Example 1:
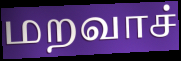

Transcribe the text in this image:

மறவாச்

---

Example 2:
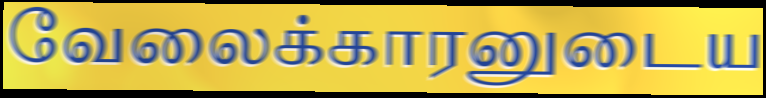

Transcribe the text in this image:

வேலைக்காரனுடைய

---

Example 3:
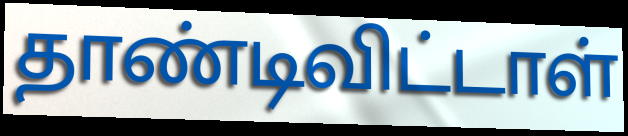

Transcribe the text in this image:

தாண்டிவிட்டாள்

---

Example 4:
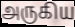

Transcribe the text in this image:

அருகிய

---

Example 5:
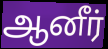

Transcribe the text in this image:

ஆனீர்